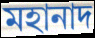
মহানাদ